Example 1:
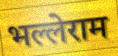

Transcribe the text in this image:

भल्लेराम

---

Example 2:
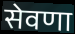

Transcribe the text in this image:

सेवणा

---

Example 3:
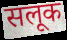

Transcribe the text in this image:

सलूक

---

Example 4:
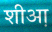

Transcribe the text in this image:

शीआ़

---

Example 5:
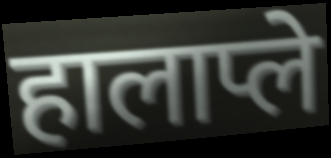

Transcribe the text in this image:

हालाप्ले